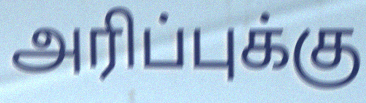
அரிப்புக்கு